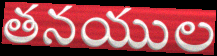
తనయుల